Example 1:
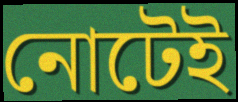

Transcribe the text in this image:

নোটেই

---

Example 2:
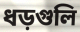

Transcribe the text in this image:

ধড়গুলি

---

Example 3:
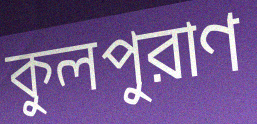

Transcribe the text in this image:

কুলপুরাণ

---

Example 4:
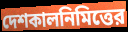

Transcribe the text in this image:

দেশকালনিমিত্তের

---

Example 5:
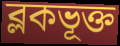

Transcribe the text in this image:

ব্লকভূক্ত